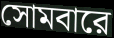
সোমবারে